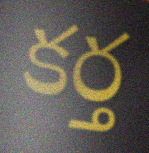
కర్త